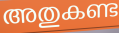
അതുകണ്ട